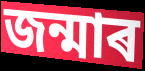
জন্মাৰ